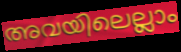
അവയിലെല്ലാം